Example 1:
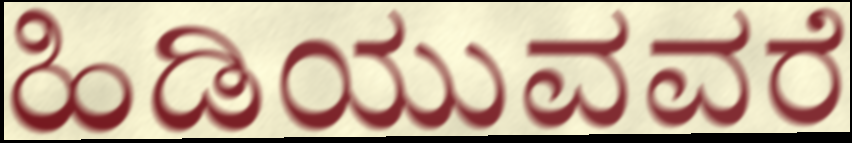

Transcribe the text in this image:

ಹಿಡಿಯುವವರೆ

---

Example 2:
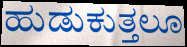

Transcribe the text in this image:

ಹುಡುಕುತ್ತಲೂ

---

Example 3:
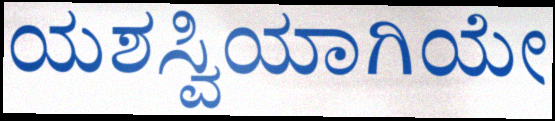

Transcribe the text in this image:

ಯಶಸ್ವಿಯಾಗಿಯೇ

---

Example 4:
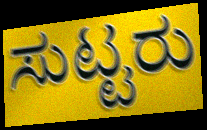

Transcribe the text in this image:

ಸುಟ್ಟರು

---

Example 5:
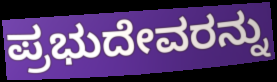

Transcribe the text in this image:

ಪ್ರಭುದೇವರನ್ನು